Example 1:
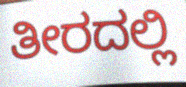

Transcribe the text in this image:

ತೀರದಲ್ಲಿ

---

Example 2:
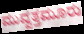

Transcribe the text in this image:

ಮುವ್ವತ್ತಮೂರು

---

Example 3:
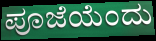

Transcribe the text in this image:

ಪೂಜೆಯೆಂದು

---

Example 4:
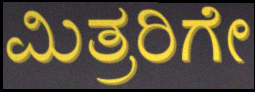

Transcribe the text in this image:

ಮಿತ್ರರಿಗೇ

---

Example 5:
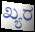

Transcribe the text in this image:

ಖ್ಯರ